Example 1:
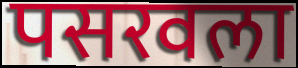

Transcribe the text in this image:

पसरवला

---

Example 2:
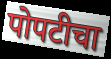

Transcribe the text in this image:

पोपटीचा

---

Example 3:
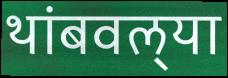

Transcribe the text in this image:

थांबवल्या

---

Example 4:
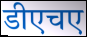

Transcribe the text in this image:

डीएचए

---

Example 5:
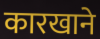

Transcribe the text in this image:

कारखाने